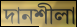
দানশীলা